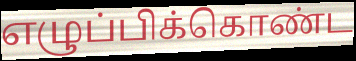
எழுப்பிக்கொண்ட